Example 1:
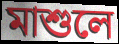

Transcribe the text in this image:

মাশুলে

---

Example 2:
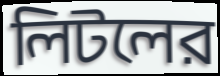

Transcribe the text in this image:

লিটলের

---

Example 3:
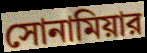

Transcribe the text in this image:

সোনামিয়ার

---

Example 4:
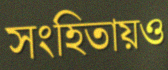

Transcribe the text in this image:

সংহিতায়ও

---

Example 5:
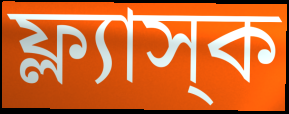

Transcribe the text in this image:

ফ্ল্যাস্‌ক